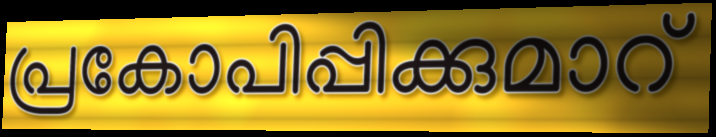
പ്രകോപിപ്പിക്കുമാറ്